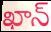
ఖాన్